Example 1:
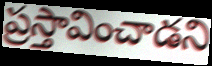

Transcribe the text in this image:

ప్రస్తావించాడని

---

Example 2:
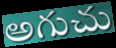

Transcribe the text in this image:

అగుచు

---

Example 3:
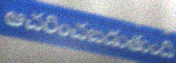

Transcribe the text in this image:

ఆచరించబడుతుంది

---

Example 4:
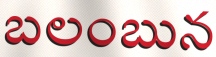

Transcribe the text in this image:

బలంబున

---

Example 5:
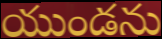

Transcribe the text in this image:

యుండను